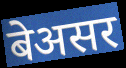
बेअसर